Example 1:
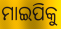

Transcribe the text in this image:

ମାଇପିକୁ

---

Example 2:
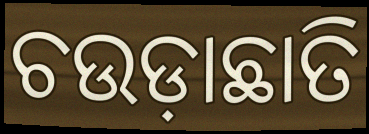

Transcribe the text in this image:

ଚଉଡ଼ାଛାତି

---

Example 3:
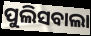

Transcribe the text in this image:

ପୁଲିସବାଲା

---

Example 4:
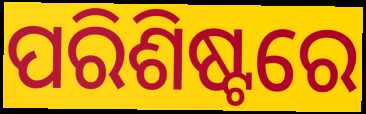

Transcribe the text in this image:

ପରିଶିଷ୍ଟରେ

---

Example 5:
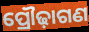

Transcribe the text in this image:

ପ୍ରୌଢ଼ାଗଣ